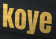
koye